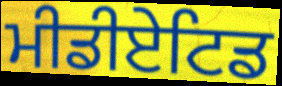
ਮੀਡੀਏਟਿਡ